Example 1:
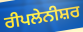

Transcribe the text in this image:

ਰੀਪਲੇਨੀਸ਼ਰ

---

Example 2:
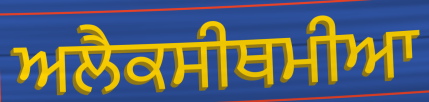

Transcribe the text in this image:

ਅਲੈਕਸੀਥਮੀਆ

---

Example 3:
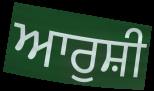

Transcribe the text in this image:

ਆਰੁਸ਼ੀ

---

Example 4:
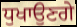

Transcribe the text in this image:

ਧੁਖਾਉਣਗੇ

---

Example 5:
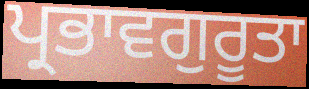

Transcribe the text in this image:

ਪ੍ਰਭਾਵਗੁਰੂਤਾ